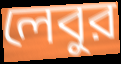
লেবুর